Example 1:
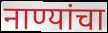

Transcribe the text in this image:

नाण्यांचा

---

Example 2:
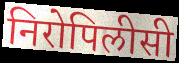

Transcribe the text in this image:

निरोपिलीसी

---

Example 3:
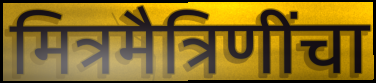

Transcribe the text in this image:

मित्रमैत्रिणींचा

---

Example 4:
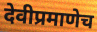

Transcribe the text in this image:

देवीप्रमाणेच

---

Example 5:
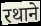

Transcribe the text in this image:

रथाने